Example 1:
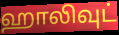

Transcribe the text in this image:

ஹாலிவுட்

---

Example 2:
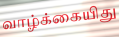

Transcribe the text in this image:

வாழ்க்கையிது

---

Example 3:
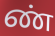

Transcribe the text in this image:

ண்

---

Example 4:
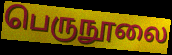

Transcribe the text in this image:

பெருநூலை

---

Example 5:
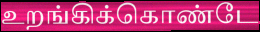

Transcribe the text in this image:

உறங்கிக்கொண்டே